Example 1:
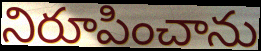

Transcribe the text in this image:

నిరూపించాను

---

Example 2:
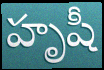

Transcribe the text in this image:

హృషీ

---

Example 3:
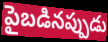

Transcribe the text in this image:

పైబడినప్పుడు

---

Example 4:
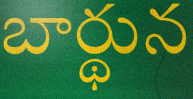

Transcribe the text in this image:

బార్థున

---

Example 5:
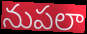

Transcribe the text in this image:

నుపలా